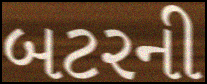
બટરની